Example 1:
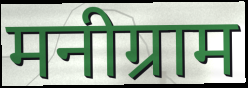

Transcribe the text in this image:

मनीग्राम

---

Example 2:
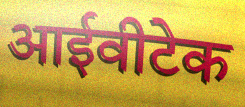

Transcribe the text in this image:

आईवीटेक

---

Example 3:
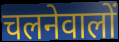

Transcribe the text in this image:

चलनेवालों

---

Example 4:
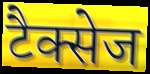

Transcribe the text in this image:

टैक्सेज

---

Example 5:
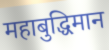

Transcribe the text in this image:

महाबुद्धिमान